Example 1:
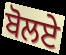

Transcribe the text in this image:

ਬੋਲਏ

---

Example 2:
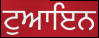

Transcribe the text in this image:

ਟੁਆਇਨ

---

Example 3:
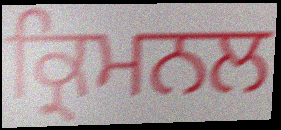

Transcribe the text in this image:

ਕ੍ਰਿਮਨਲ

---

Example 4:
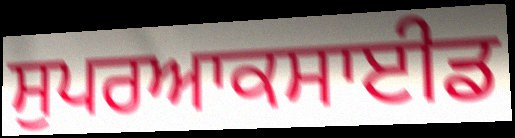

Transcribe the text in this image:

ਸੁਪਰਆਕਸਾਈਡ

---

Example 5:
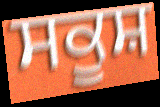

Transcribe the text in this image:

ਸਕੂਸ਼